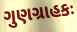
ગુણગ્રાહકઃ